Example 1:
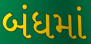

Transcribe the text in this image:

બંધમાં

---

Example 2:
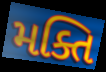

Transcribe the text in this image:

મક્તિ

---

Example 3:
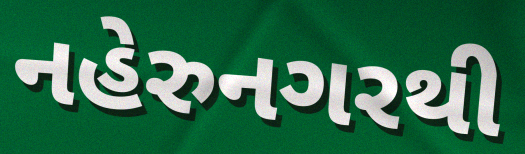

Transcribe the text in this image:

નહેરુનગરથી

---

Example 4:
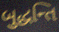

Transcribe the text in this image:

બુદ્ધન્તિ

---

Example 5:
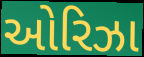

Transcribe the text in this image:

ઓરિઝા